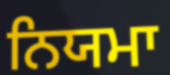
ਨਿਯਮਾ